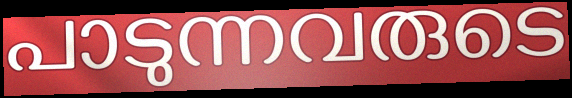
പാടുന്നവരുടെ